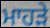
ਮਾਹੜੇ